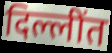
दिल्लींत